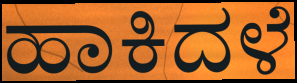
ಹಾಕಿದಳೆ